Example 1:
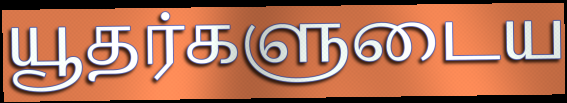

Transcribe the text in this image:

யூதர்களுடைய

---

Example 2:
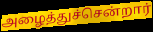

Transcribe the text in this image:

அழைத்துச்சென்றார்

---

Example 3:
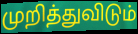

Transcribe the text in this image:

முறித்துவிடும்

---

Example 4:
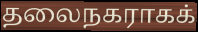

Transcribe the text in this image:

தலைநகராகக்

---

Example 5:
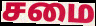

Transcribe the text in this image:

சமை